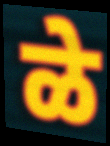
ळे